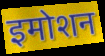
इमोशन